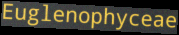
Euglenophyceae